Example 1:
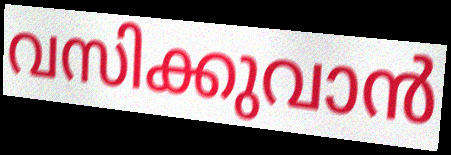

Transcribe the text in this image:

വസിക്കുവാൻ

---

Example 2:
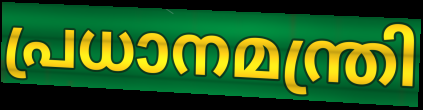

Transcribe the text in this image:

പ്രധാനമന്ത്രി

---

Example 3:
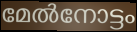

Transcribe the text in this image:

മേൽനോട്ടം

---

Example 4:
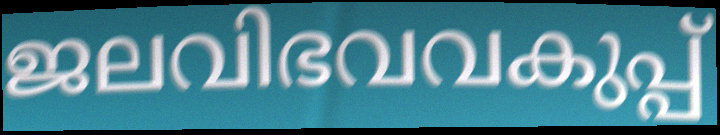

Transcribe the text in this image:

ജലവിഭവവകുപ്പ്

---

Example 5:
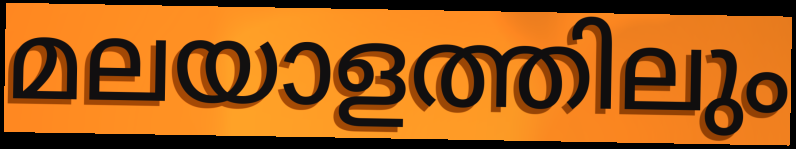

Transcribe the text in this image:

മലയാളത്തിലും